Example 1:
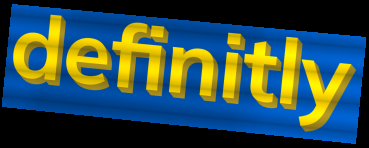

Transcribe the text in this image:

definitly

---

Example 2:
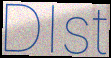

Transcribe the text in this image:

DIst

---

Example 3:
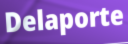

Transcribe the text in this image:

Delaporte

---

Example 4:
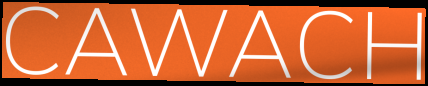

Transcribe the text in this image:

CAWACH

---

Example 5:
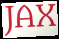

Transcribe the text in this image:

JAX